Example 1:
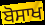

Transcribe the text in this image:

ਬੋਸਾਖ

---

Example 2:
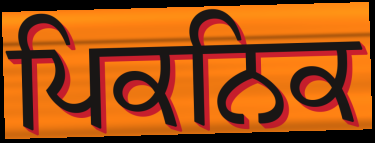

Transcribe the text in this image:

ਪਿਕਨਿਕ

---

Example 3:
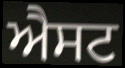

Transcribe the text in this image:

ਐਸਟ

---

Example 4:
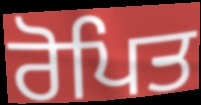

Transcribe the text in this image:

ਰੋਪਿਤ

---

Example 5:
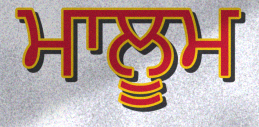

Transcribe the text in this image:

ਮਾਲੂਮ